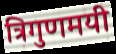
त्रिगुणमयी